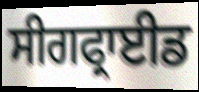
ਸੀਗਫ੍ਰਾਈਡ